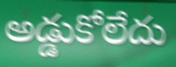
అడ్డుకోలేదు